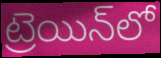
ట్రెయిన్‌లో